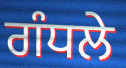
ਗੰਧਲੇ